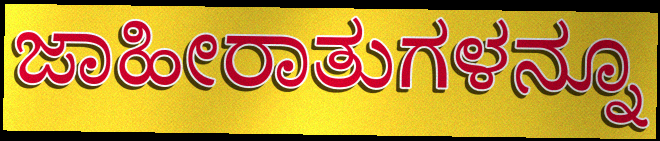
ಜಾಹೀರಾತುಗಳನ್ನೂ